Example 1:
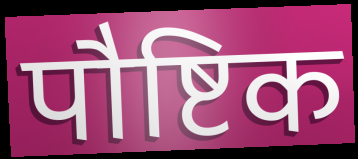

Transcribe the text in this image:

पौष्टिक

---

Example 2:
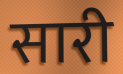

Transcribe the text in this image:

सारी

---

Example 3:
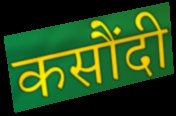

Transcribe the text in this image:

कसौंदी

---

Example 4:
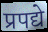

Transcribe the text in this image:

प्रपद्ये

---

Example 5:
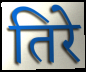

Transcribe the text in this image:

तिरे